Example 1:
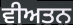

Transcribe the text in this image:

ਵੀਅਤਨ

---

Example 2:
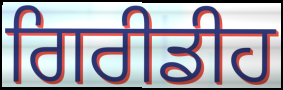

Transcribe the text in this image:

ਗਿਰੀਡੀਹ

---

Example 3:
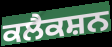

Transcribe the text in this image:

ਕਲੈਕਸ਼ਨ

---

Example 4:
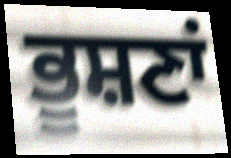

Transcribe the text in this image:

ਭੂਸ਼ਣਾਂ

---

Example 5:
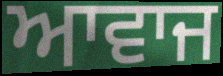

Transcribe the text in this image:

ਆਵਾਜ